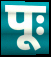
पूः